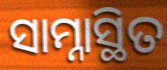
ସାମ୍ନାସ୍ଥିତ